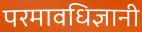
परमावधिज्ञानी